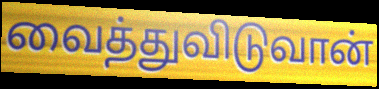
வைத்துவிடுவான்